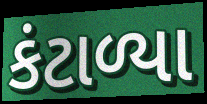
કંટાળ્યા